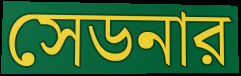
সেডনার